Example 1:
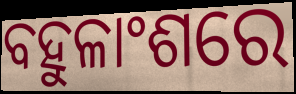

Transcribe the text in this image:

ବହୁଳାଂଶରେ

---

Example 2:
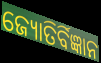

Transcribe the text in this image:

ଜ୍ୟୋତିର୍ବିଜ୍ଞାନ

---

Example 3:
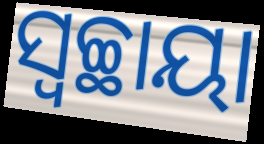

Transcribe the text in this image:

ସ୍ୱଚ୍ଛାୟା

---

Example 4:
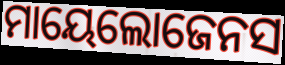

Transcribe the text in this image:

ମାୟେଲୋଜେନସ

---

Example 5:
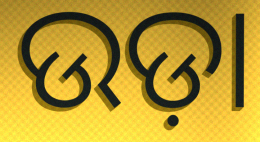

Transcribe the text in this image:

ଉଡ଼ା